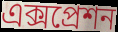
এক্সপ্রেশন